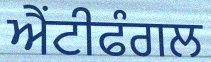
ਐਂਟੀਫੰਗਲ